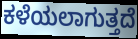
ಕಳೆಯಲಾಗುತ್ತದೆ